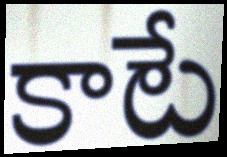
కాటే